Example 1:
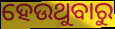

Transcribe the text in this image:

ହେଉଥୁବାରୁ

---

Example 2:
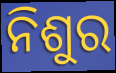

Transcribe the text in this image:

ନିଶୁର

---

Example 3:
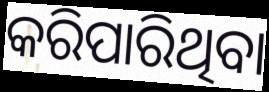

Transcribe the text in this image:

କରିପାରିଥିବା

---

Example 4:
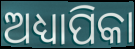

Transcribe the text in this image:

ଅଧ୍ୟାପିକା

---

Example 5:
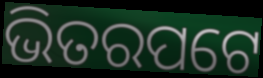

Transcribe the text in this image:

ଭିତରପଟେ